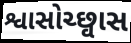
શ્વાસોચ્છ્વાસ